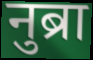
नुब्रा